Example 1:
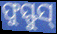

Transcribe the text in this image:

ଫୁସ୍ଫୁସ୍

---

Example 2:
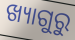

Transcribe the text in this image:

ଖ୍ୟାଗୁରୁ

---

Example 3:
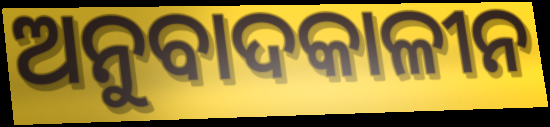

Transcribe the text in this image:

ଅନୁବାଦକାଳୀନ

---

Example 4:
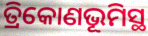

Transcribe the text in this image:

ତ୍ରିକୋଣଭୂମିସ୍ଥ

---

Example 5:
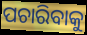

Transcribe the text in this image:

ପଚାରିବାକୁ